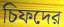
চিফদের